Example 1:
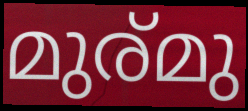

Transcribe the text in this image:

മുര്മു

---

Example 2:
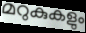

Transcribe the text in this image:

മറുകുകളും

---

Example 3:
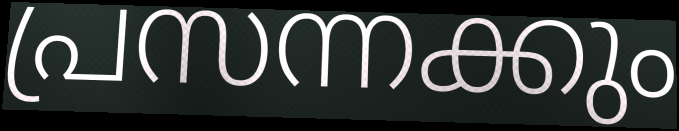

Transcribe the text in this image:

പ്രസന്നക്കും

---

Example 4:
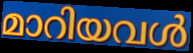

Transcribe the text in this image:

മാറിയവൾ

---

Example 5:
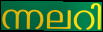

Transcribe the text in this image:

ന്നലറി